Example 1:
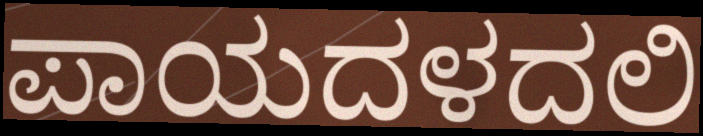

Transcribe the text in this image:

ಪಾಯದಳದಲಿ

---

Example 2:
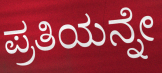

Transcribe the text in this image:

ಪ್ರತಿಯನ್ನೇ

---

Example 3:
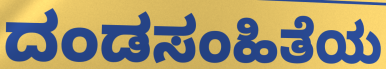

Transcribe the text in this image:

ದಂಡಸಂಹಿತೆಯ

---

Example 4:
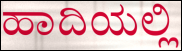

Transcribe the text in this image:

ಹಾದಿಯಲ್ಲಿ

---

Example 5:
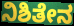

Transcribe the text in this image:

ನಿಶಿತೇನ